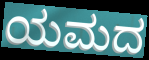
ಯಮದ